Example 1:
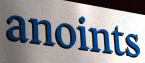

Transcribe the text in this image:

anoints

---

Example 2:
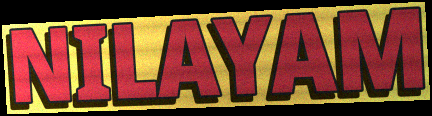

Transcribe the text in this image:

NILAYAM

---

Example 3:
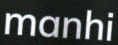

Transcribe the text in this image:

manhi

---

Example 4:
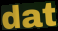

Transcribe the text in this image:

dat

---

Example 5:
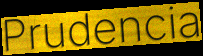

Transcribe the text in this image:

Prudencia